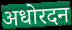
अधोरदन